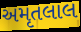
અમૃતલાલ